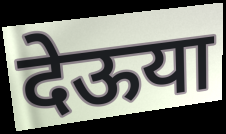
देऊया